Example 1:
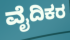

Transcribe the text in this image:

ವೈದಿಕರ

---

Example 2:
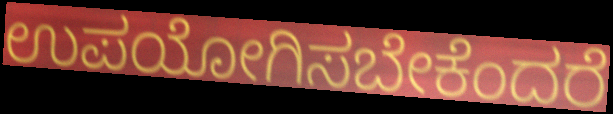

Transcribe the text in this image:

ಉಪಯೋಗಿಸಬೇಕೆಂದರೆ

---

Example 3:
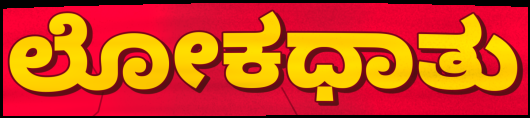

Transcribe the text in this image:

ಲೋಕಧಾತು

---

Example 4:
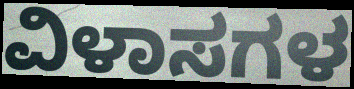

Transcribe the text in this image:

ವಿಳಾಸಗಳ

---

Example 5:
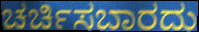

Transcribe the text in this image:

ಚರ್ಚಿಸಬಾರದು